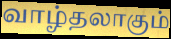
வாழ்தலாகும்